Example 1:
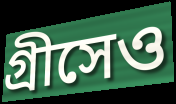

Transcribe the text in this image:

গ্রীসেও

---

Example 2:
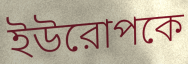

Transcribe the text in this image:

ইউরোপকে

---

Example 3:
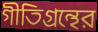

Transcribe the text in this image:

গীতিগ্রন্থের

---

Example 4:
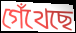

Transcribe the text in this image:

গেঁথেছে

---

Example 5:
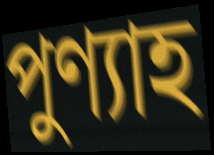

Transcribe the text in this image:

পুণ্যাহ